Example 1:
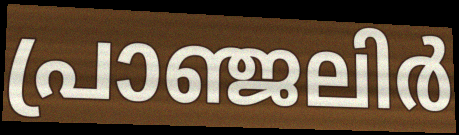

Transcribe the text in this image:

പ്രാഞ്ജലിർ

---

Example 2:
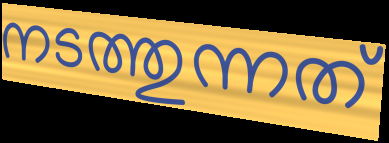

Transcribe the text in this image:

നടത്തുന്നത്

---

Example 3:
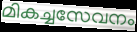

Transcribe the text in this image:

മികച്ചസേവനം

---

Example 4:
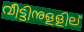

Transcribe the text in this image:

വീട്ടിനുളളില്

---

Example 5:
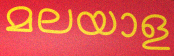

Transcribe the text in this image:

മലയാള